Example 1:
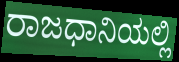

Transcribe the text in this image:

ರಾಜಧಾನಿಯಲ್ಲಿ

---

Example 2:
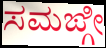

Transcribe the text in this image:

ಸಮಙ್ಗೀ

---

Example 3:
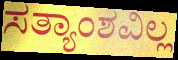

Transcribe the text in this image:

ಸತ್ಯಾಂಶವಿಲ್ಲ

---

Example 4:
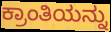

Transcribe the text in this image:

ಕ್ರಾಂತಿಯನ್ನು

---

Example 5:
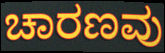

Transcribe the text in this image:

ಚಾರಣವು